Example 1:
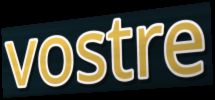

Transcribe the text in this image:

vostre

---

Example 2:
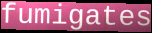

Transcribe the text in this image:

fumigates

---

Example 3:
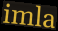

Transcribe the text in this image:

imla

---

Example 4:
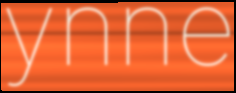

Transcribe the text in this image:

ynne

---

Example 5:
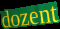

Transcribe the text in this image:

dozent